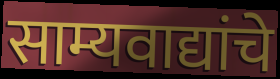
साम्यवाद्यांचे